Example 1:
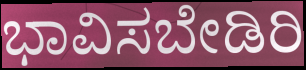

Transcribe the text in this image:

ಭಾವಿಸಬೇಡಿರಿ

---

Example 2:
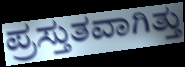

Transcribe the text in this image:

ಪ್ರಸ್ತುತವಾಗಿತ್ತು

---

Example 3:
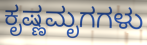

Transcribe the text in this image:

ಕೃಷ್ಣಮೃಗಗಳು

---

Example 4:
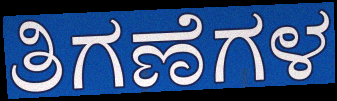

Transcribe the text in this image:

ತಿಗಣೆಗಳ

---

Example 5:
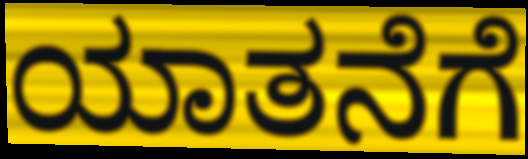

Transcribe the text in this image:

ಯಾತನೆಗೆ